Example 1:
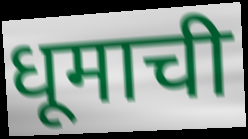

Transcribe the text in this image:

धूमाची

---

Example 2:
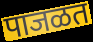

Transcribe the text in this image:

पाजळत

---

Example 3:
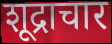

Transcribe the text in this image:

शूद्राचार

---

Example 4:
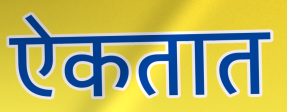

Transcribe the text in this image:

ऐकतात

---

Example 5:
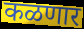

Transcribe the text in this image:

कळणार